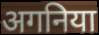
अगनिया